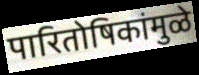
पारितोषिकांमुळे